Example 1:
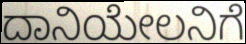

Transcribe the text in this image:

ದಾನಿಯೇಲನಿಗೆ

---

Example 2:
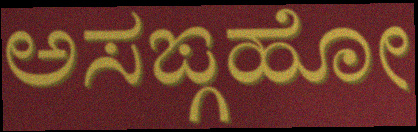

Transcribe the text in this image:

ಅಸಙ್ಗಹೋ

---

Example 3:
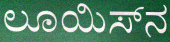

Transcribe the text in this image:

ಲೂಯಿಸ್‌ನ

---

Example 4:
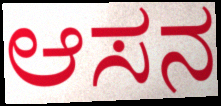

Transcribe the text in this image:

ಆಸನ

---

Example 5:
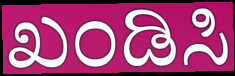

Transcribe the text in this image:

ಖಂಡಿಸಿ